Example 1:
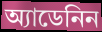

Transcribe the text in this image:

অ্যাডেনিন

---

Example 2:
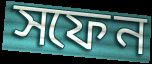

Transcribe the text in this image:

সফেন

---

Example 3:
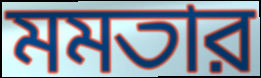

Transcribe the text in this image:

মমতার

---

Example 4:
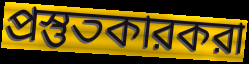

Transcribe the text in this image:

প্রস্তুতকারকরা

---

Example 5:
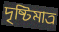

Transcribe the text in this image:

দৃষ্টিমাত্র